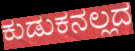
ಕುಡುಕನಲ್ಲದ